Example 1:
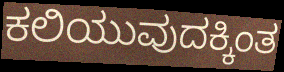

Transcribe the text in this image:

ಕಲಿಯುವುದಕ್ಕಿಂತ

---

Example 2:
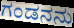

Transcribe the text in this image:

ಗಂಡನನು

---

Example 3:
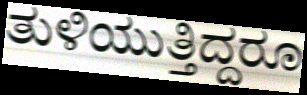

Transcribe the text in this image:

ತುಳಿಯುತ್ತಿದ್ದರೂ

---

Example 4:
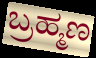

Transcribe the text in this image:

ಬ್ರಹ್ಮಣ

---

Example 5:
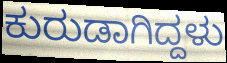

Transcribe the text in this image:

ಕುರುಡಾಗಿದ್ದಳು